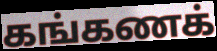
கங்கணக்